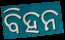
ବିହନ